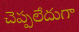
చెప్పలేదుగా